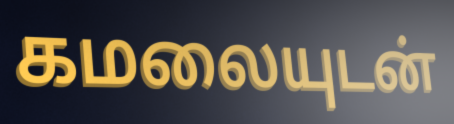
கமலையுடன்